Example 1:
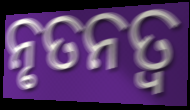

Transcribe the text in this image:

ନୃତନତ୍ୱ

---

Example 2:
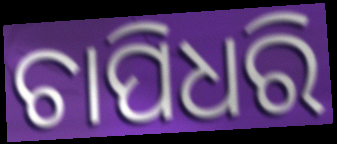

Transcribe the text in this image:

ଚାପିଧରି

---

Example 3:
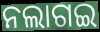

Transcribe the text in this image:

ନଲାଗଇ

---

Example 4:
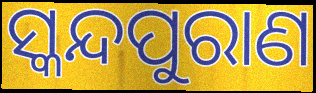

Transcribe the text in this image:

ସ୍କନ୍ଦପୁରାଣ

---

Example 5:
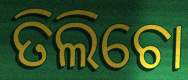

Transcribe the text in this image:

ତିଲିଚୋ